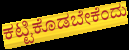
ಕಟ್ಟಿಕೊಡಬೇಕೆಂದು